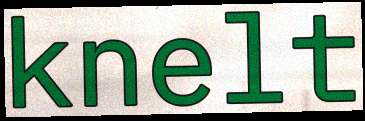
knelt